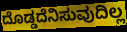
ದೊಡ್ಡದೆನಿಸುವುದಿಲ್ಲ